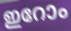
ഇറോം